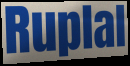
Ruplal